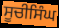
ਸੂਚੀਸਿੰਘ